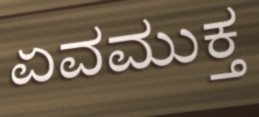
ಏವಮುಕ್ತ